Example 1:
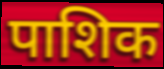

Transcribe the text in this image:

पाशिक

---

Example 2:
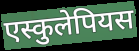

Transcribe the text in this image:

एस्कुलेपियस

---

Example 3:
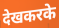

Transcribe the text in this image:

देखकरके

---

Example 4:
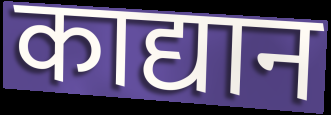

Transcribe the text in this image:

काद्यान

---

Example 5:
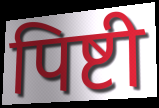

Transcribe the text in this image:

पिष्टी